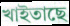
খাইতাছে